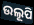
ଉଲୂପି